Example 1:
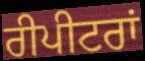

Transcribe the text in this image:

ਰੀਪੀਟਰਾਂ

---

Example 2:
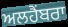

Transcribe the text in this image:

ਅਲਹੈਂਬਰਾ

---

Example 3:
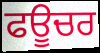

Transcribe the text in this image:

ਫਊਚਰ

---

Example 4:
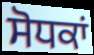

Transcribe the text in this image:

ਸੋਧਕਾਂ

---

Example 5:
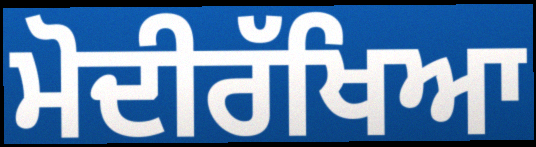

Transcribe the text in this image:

ਮੋਦੀਰੱਖਿਆ